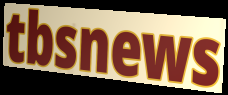
tbsnews